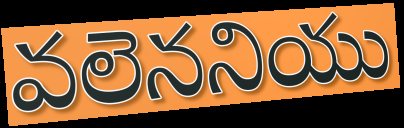
వలెననియు